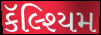
કૅલ્શ્યિમ